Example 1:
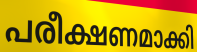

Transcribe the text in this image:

പരീക്ഷണമാക്കി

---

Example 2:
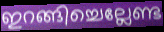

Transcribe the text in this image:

ഇറങ്ങിച്ചെല്ലേണ്ട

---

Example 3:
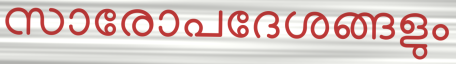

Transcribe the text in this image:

സാരോപദേശങ്ങളും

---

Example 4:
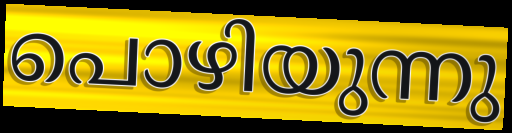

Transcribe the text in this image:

പൊഴിയുന്നു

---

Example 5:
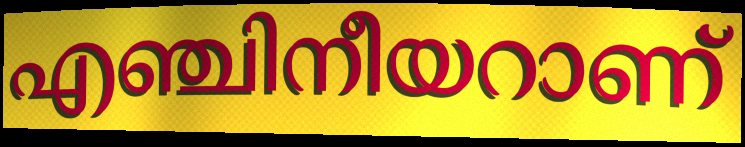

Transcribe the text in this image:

എഞ്ചിനീയറാണ്